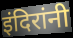
इंदिरांनी